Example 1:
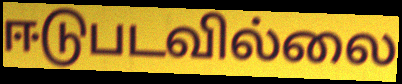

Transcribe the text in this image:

ஈடுபடவில்லை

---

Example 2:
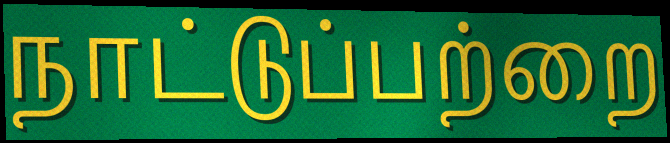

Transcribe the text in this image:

நாட்டுப்பற்றை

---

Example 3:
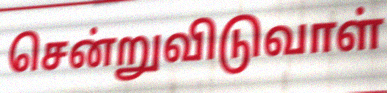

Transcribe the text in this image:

சென்றுவிடுவாள்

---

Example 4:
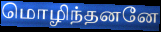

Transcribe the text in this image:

மொழிந்தனனே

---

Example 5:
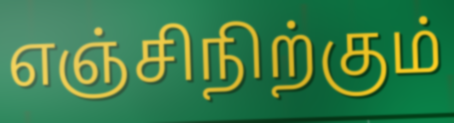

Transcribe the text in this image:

எஞ்சிநிற்கும்